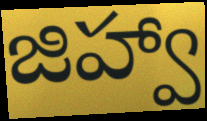
జిహ్వా